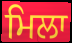
ਮਿਲਾ